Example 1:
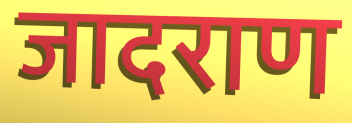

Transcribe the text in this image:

जादराण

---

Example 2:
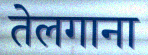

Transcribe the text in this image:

तेलगाना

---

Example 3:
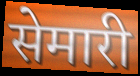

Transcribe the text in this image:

सेमारी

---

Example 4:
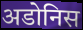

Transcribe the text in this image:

अडोनिस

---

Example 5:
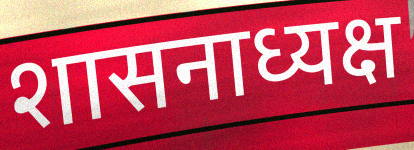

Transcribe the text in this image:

शासनाध्यक्ष